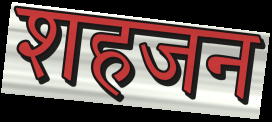
शहजन